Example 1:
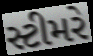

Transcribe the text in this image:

સ્ટીમરે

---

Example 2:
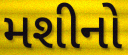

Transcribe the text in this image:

મશીનો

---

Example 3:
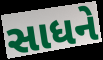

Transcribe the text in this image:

સાધને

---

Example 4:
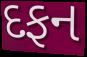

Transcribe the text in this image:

દફન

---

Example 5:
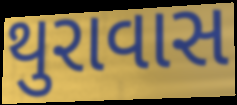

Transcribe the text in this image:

થુરાવાસ